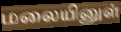
மலையினுள்